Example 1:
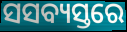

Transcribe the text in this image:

ସସବ୍ୟସ୍ତରେ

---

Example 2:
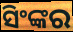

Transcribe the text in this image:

ସିଂଙ୍କର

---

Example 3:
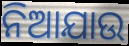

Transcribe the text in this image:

ନିଆଯାଉ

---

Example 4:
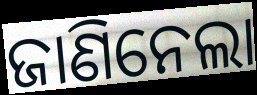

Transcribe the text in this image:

ଜାଣିନେଲା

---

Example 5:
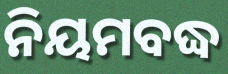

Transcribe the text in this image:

ନିୟମବଦ୍ଧ